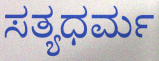
ಸತ್ಯಧರ್ಮ